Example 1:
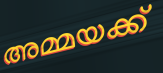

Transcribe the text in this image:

അമ്മയക്ക്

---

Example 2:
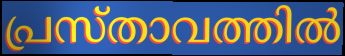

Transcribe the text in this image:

പ്രസ്താവത്തിൽ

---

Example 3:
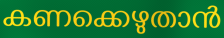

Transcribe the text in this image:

കണക്കെഴുതാൻ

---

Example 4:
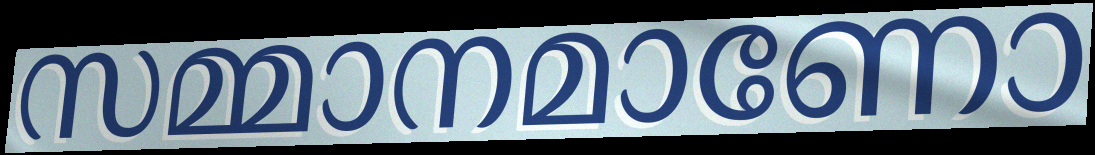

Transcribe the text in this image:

സമ്മാനമാണോ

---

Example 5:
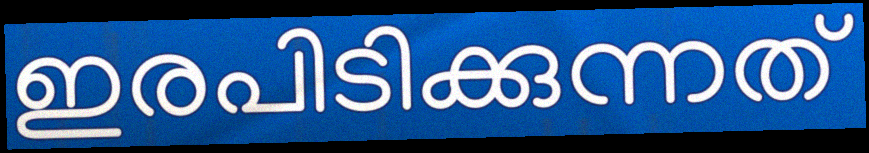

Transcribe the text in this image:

ഇരപിടിക്കുന്നത്